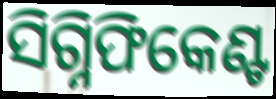
ସିଗ୍ନିଫିକେଣ୍ଟ